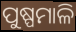
ପୁଷ୍ପମାଳି